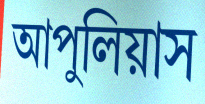
আপুলিয়াস